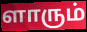
ளாரும்